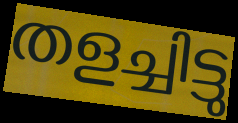
തളച്ചിട്ടു